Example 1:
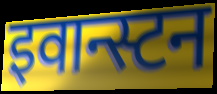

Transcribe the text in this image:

इवान्स्टन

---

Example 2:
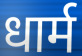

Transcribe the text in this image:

धार्म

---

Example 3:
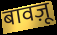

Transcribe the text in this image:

बावज़ू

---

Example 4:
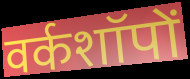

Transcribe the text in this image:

वर्कशॉपों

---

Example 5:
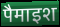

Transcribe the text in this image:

पैमाइश